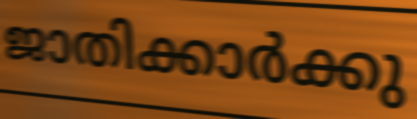
ജാതിക്കാർക്കു